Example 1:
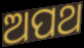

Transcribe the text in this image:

ଅପଥ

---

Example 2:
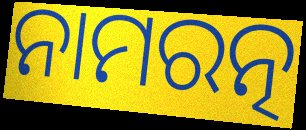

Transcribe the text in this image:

ନାମରତ୍ନ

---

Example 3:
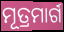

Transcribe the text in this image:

ମୂତ୍ରମାର୍ଗ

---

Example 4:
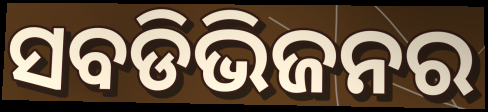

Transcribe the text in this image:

ସବଡିଭିଜନର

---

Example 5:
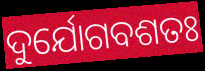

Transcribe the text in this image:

ଦୁର୍ଯୋଗବଶତଃ